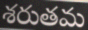
శరుతమ